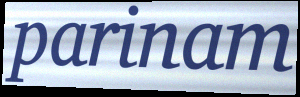
parinam